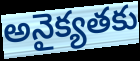
అనైక్యతకు